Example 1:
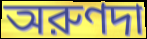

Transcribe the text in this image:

অরুণদা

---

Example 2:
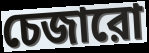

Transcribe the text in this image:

চেজারো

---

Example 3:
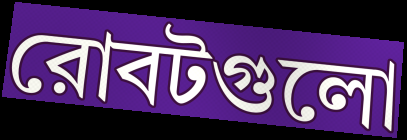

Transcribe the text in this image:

রোবটগুলো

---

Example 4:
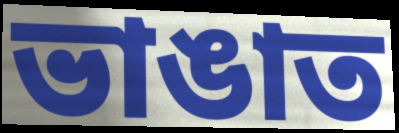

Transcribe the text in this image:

ভাঙাত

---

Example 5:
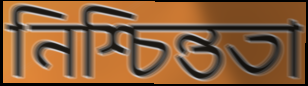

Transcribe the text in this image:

নিশ্চিন্ততা